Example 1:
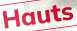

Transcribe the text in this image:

Hauts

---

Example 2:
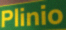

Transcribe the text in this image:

Plinio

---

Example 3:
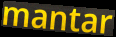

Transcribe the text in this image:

mantar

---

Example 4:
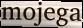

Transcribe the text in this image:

mojega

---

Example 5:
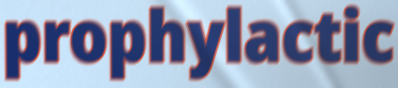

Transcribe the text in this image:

prophylactic